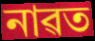
নাৱত